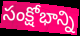
సంక్షోభాన్ని